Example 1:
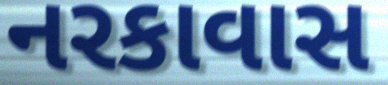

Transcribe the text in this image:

નરકાવાસ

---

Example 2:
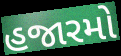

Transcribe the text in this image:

હજારમો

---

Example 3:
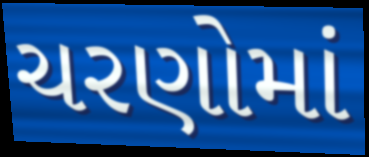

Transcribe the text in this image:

ચરણોમાં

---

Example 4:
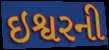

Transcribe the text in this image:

ઇશ્વરની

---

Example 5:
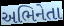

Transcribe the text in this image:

અભિનેતા